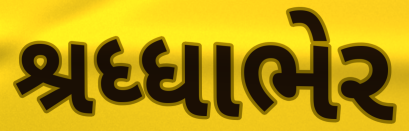
શ્રધ્ધાભેર